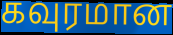
கவுரமான